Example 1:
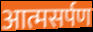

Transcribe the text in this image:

आत्मसर्पण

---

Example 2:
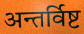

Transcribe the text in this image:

अन्तर्विष्ट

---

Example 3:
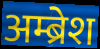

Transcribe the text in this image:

अम्ब्रेश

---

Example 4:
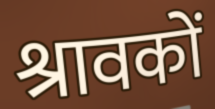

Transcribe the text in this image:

श्रावकों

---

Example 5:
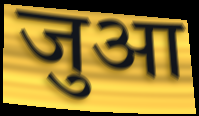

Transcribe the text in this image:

जुआ